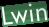
Lwin